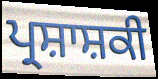
ਪ੍ਰਸ਼ਾਸ਼ਕੀ